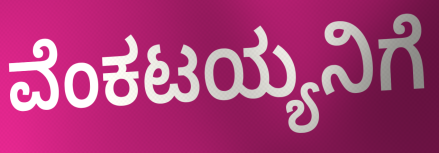
ವೆಂಕಟಯ್ಯನಿಗೆ